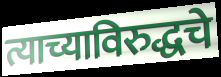
त्याच्याविरुद्धचे